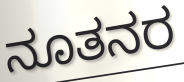
ನೂತನರ